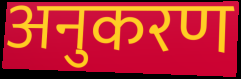
अनुकरण